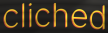
cliched